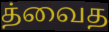
த்வைத